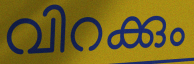
വിറക്കും